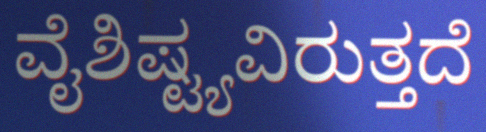
ವೈಶಿಷ್ಟ್ಯವಿರುತ್ತದೆ